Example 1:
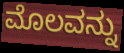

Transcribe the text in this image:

ಮೊಲವನ್ನು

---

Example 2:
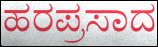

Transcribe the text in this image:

ಹರಪ್ರಸಾದ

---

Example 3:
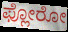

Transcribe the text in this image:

ಫ್ಲೋರೋ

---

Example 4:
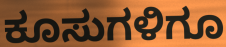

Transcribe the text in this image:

ಕೂಸುಗಳಿಗೂ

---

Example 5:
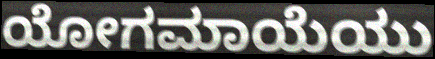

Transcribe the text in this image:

ಯೋಗಮಾಯೆಯು